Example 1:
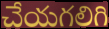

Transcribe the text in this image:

చేయగలిగి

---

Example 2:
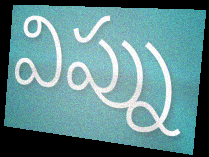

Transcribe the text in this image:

విప్ను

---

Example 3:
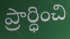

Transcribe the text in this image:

ప్రార్ధించి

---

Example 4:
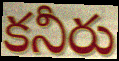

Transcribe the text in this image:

కనీరు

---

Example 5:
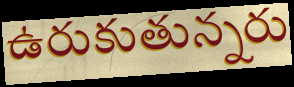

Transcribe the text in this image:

ఉరుకుతున్నరు